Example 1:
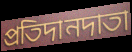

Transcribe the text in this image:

প্রতিদানদাতা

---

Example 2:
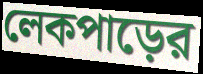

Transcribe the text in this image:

লেকপাড়ের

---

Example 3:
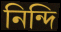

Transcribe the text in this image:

নিন্দি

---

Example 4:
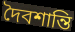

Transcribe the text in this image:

দৈবশান্তি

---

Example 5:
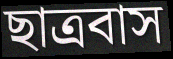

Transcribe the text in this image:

ছাত্রবাস